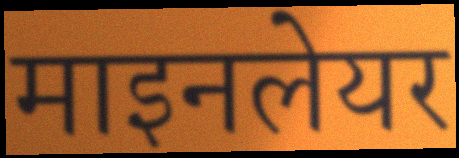
माइनलेयर